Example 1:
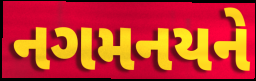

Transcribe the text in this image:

નગમનયને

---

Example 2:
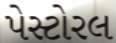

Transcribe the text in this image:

પેસ્ટોરલ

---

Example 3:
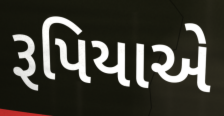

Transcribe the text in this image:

રૂપિયાએ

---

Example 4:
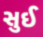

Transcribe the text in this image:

સુઈ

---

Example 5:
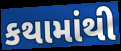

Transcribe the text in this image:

કથામાંથી